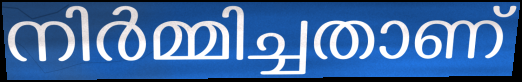
നിർമ്മിച്ചതാണ്